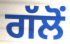
ਗੱਲੋਂ